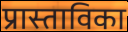
प्रास्ताविका